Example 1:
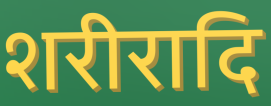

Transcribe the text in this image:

शरीरादि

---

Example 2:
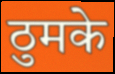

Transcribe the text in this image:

ठुमके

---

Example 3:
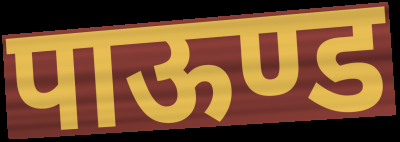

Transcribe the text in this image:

पाऊण्ड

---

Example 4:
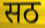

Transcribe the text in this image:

सठ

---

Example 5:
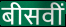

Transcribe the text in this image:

बीसवीं